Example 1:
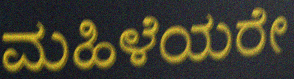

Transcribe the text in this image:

ಮಹಿಳೆಯರೇ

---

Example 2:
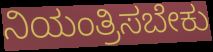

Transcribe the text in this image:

ನಿಯಂತ್ರಿಸಬೇಕು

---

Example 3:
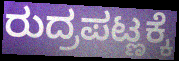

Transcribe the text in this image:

ರುದ್ರಪಟ್ಣಕ್ಕೆ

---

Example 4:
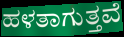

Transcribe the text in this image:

ಹಳತಾಗುತ್ತವೆ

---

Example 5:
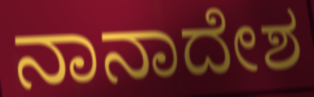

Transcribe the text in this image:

ನಾನಾದೇಶ